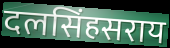
दलसिंहसराय